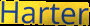
Harter